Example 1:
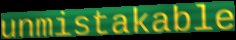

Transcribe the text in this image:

unmistakable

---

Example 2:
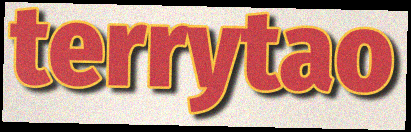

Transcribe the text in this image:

terrytao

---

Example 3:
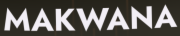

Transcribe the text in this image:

MAKWANA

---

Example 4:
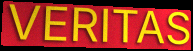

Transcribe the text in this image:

VERITAS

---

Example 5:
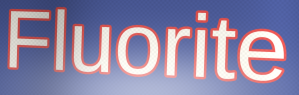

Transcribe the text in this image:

Fluorite